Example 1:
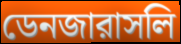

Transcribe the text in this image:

ডেনজারাসলি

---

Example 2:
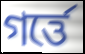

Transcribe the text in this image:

গর্ত্তে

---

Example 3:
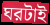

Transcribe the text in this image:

ঘরটাই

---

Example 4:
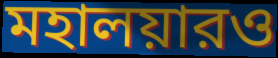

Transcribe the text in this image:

মহালয়ারও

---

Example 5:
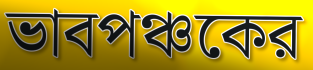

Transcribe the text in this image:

ভাবপঞ্চকের